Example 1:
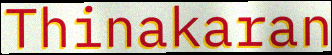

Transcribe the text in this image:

Thinakaran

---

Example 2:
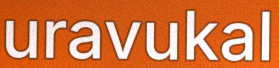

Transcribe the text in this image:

uravukal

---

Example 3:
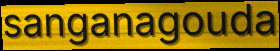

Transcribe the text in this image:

sanganagouda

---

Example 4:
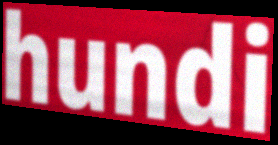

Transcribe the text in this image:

hundi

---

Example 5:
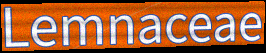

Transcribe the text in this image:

Lemnaceae